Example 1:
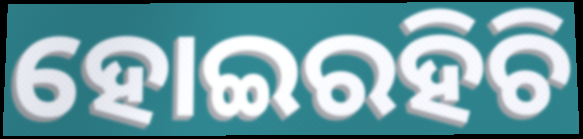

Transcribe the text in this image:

ହୋଇରହିଚି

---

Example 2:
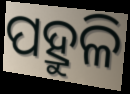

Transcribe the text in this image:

ପହ୍ରୁଳି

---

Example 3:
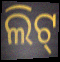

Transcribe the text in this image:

ଲିଟ୍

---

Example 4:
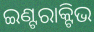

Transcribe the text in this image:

ଇଣ୍ଟରାକ୍ଟିଭ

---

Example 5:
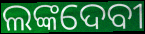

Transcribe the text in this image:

ଲଙ୍କଦେବୀ